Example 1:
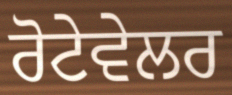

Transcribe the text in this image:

ਰੋਟੇਵੇਲਰ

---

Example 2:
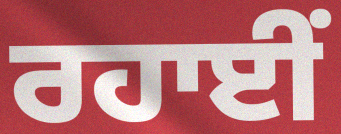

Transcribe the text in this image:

ਰਹਾਈਂ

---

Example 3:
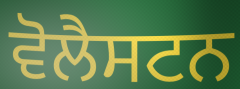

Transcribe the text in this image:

ਵੋਲੈਸਟਨ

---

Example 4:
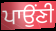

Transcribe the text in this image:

ਪਾਉਂਣੀ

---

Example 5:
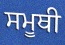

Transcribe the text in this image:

ਸਮੂਥੀ